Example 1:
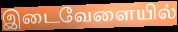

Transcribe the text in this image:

இடைவேளையில்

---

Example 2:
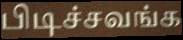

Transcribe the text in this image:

பிடிச்சவங்க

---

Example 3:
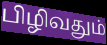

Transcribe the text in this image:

பிழிவதும்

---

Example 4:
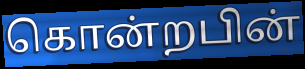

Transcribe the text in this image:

கொன்றபின்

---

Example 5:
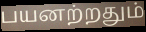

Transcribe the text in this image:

பயனற்றதும்